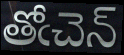
తోఁచెన్